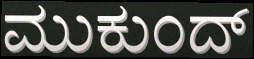
ಮುಕುಂದ್